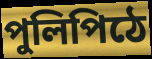
পুলিপিঠে